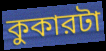
কুকারটা